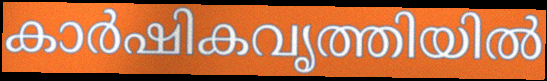
കാർഷികവൃത്തിയിൽ